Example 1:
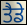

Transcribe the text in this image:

ਤੈਡੇ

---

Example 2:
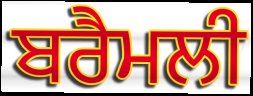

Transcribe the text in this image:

ਬਰੈਮਲੀ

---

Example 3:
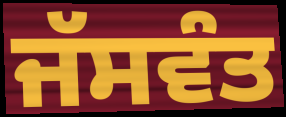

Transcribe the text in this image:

ਜੱਸਵੰਤ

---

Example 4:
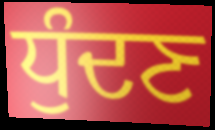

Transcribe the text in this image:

ਧੁੰਦਣ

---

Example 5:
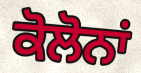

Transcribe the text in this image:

ਕੋਲੋਨਾਂ